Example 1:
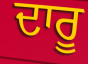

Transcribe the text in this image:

ਦਾਰੂ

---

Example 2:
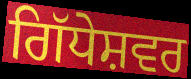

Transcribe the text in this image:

ਗਿੱਧੇਸ਼ਵਰ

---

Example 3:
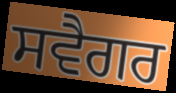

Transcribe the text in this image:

ਸਵੈਗਰ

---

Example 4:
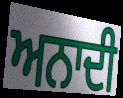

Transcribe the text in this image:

ਅਨਾਦੀ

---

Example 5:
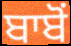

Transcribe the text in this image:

ਬਾਬੋਂ